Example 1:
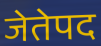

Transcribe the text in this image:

जेतेपद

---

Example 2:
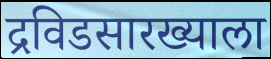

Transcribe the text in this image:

द्रविडसारख्याला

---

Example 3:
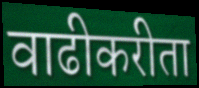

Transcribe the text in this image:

वाढीकरीता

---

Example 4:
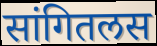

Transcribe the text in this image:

सांगितलस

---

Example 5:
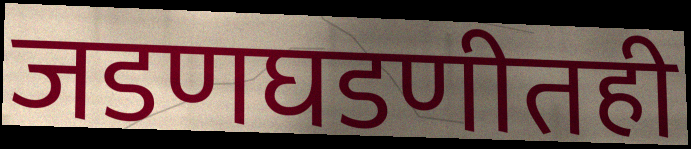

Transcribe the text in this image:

जडणघडणीतही